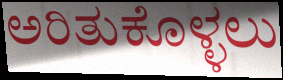
ಅರಿತುಕೊಳ್ಳಲು